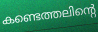
കണ്ടെത്തലിന്റെ